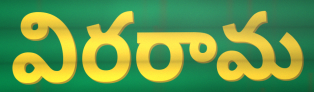
విరరామ